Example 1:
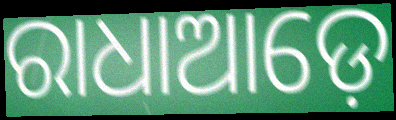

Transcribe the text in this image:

ରାଧାଆଡ଼େ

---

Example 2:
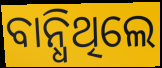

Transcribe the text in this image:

ବାନ୍ଧିଥିଲେ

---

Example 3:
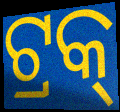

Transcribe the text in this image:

ଟ୍ରକ୍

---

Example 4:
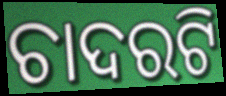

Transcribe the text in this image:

ଚାଦରଟି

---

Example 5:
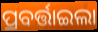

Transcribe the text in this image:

ପ୍ରବର୍ତ୍ତାଇଲା